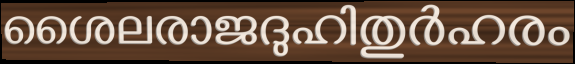
ശൈലരാജദുഹിതുർഹരം